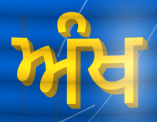
ਅੰਖ